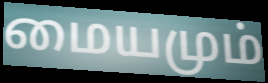
மையமும்